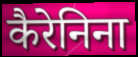
कैरेनिना